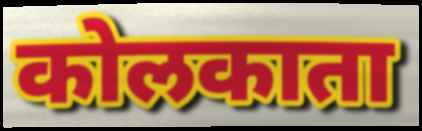
कोलकाता